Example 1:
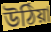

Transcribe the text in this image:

উঠিয়া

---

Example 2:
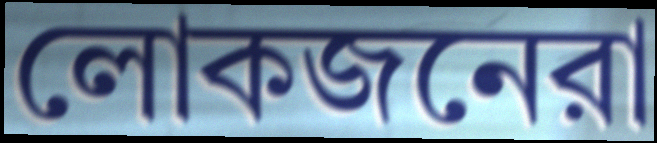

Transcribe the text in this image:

লোকজনেরা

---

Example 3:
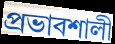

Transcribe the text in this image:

প্রভাবশালী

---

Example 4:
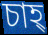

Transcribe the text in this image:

চাহ্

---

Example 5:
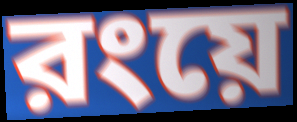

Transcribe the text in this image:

রংয়ে